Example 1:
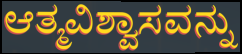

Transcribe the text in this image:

ಆತ್ಮವಿಶ್ವಾಸವನ್ನು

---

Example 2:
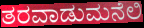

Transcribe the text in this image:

ತರವಾಡುಮನೆಲಿ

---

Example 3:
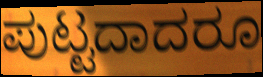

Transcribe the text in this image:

ಪುಟ್ಟದಾದರೂ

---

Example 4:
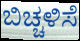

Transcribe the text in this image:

ಬಿಚ್ಚಳಿಸೆ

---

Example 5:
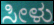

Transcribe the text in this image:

ಸೀಳು